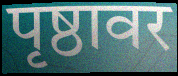
पृष्ठावर